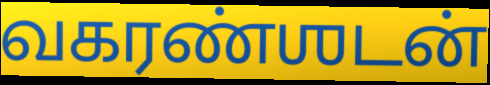
வகரண்ஶடன்